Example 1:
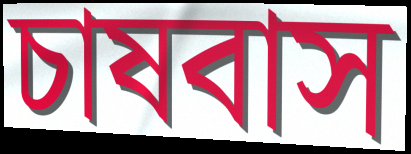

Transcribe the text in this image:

চাষবাস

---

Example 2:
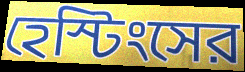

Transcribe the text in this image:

হেস্টিংসের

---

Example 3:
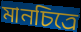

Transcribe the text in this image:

মানচিত্রে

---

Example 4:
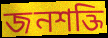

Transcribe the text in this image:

জনশক্তি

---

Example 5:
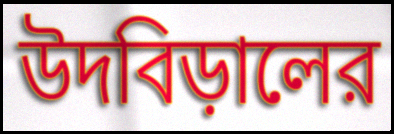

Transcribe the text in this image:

উদবিড়ালের